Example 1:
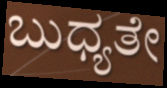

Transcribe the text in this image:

ಬುಧ್ಯತೇ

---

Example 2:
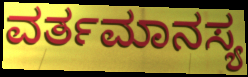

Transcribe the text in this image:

ವರ್ತಮಾನಸ್ಯ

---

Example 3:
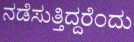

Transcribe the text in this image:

ನಡೆಸುತ್ತಿದ್ದರೆಂದು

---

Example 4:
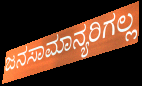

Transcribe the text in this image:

ಜನಸಾಮಾನ್ಯರಿಗಲ್ಲ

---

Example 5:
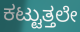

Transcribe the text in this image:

ಕಟ್ಟುತ್ತಲೇ